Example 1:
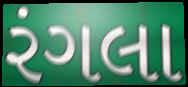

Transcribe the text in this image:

રંગલા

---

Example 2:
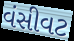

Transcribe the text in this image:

વંસીવટ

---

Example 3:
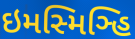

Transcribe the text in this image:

ઇમસ્મિઞ્હિ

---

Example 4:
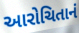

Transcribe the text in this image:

આરોચિતાનં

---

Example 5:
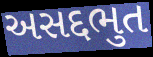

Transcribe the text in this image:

અસદ્દભુત